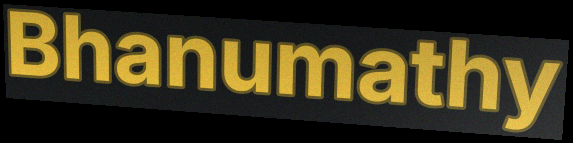
Bhanumathy